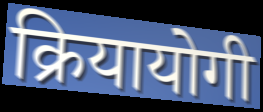
क्रियायोगी